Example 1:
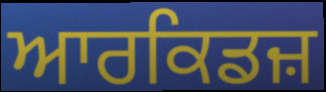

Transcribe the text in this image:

ਆਰਕਿਡਜ਼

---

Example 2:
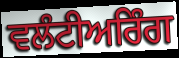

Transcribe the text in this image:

ਵਲੰਟੀਅਰਿੰਗ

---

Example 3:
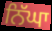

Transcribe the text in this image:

ਨਿੱਘਾ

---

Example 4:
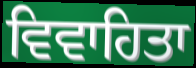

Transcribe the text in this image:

ਵਿਵਾਹਿਤਾ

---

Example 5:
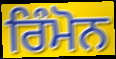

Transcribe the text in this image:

ਰਿੰਮੋਨ